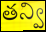
తన్వి